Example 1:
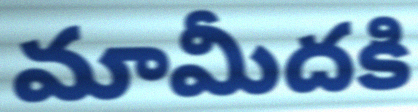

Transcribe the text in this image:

మామీదకి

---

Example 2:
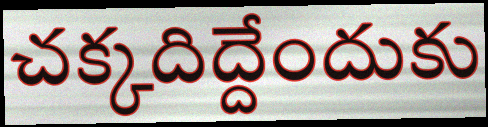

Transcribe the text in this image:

చక్కదిద్దేందుకు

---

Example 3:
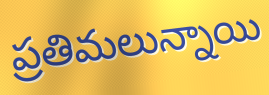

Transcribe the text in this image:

ప్రతిమలున్నాయి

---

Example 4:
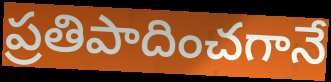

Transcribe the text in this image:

ప్రతిపాదించగానే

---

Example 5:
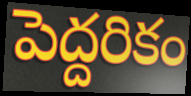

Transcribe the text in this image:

పెద్దరికం